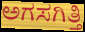
ಅಗಸಗಿತ್ತಿ